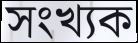
সংখ্যক